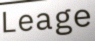
Leage